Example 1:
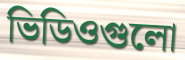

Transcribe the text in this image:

ভিডিওগুলো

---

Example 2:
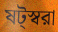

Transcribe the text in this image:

ষট্স্বরা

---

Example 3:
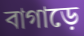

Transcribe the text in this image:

বাগাড়ে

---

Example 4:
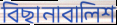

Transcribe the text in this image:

বিছানাবালিশ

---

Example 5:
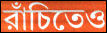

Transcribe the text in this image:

রাঁচিতেও